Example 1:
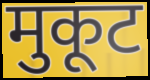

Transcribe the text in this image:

मुकूट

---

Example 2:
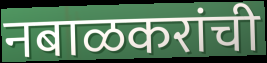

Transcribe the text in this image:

नबाळकरांची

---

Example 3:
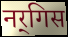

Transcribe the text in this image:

नर्गिस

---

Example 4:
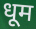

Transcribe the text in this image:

धूम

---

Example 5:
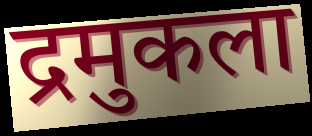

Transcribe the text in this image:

द्रमुकला